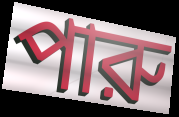
পারু